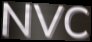
NVC